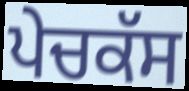
ਪੇਚਕੱਸ